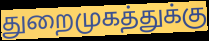
துறைமுகத்துக்கு